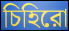
চিহিরো